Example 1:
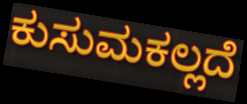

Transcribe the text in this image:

ಕುಸುಮಕಲ್ಲದೆ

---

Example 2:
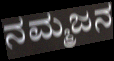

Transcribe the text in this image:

ನಮ್ಮಜನ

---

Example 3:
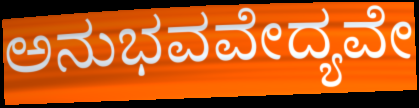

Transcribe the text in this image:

ಅನುಭವವೇದ್ಯವೇ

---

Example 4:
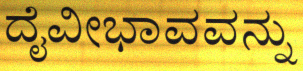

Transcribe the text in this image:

ದೈವೀಭಾವವನ್ನು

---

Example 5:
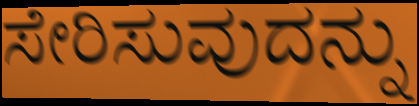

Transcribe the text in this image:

ಸೇರಿಸುವುದನ್ನು